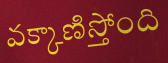
వక్కాణిస్తోంది